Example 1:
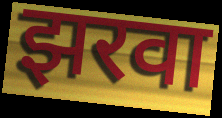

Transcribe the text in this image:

झरवा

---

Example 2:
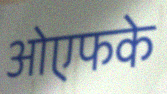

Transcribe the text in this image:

ओएफके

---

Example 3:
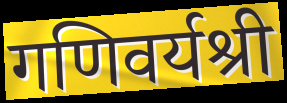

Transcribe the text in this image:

गणिवर्यश्री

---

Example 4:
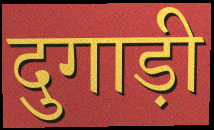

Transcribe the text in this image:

दुगाड़ी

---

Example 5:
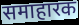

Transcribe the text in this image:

समाहारक